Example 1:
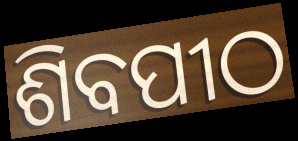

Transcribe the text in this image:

ଶିବପୀଠ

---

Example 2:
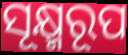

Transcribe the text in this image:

ସୂକ୍ଷ୍ମରୂପ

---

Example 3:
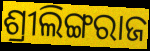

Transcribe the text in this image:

ଶ୍ରୀଲିଙ୍ଗରାଜ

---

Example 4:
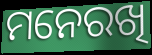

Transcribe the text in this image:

ମନେରଖି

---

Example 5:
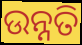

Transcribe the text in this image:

ଉନ୍ନତି